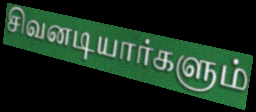
சிவனடியார்களும்